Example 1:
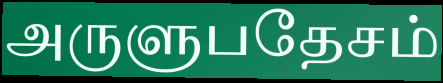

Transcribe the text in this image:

அருளுபதேசம்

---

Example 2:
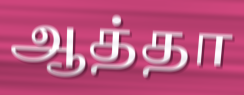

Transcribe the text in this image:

ஆத்தா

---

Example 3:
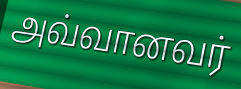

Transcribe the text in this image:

அவ்வானவர்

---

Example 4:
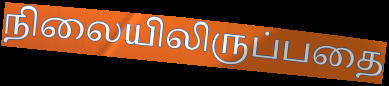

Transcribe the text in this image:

நிலையிலிருப்பதை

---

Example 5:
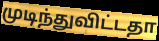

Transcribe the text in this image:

முடிந்துவிட்டதா